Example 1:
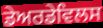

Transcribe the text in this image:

ਡੇਅਰਡੇਵਿਲਸ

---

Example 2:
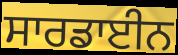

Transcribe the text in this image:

ਸਾਰਡਾਈਨ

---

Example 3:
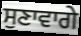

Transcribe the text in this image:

ਸੁਣਾਵਾਗੇ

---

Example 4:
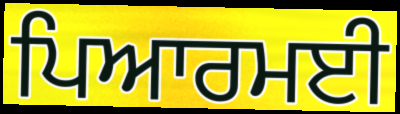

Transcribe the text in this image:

ਪਿਆਰਮਈ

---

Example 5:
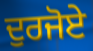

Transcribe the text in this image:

ਦੁਰਜੋਏ